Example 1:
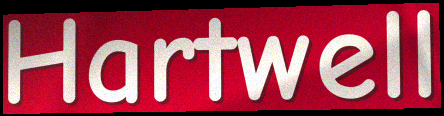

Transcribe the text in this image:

Hartwell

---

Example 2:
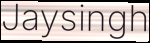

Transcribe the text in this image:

Jaysingh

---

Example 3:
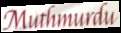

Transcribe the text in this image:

Muthmurdu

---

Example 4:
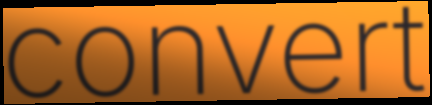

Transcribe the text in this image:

convert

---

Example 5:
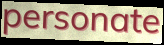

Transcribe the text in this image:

personate